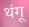
थंगू